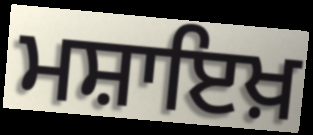
ਮਸ਼ਾਇਖ਼